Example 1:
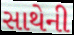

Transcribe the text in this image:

સાથેની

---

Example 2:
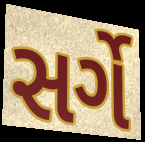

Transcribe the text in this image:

સર્ગે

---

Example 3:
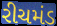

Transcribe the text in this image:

રીચમંડ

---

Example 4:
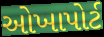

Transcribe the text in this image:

ઓખાપોર્ટ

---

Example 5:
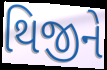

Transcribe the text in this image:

થિજીને